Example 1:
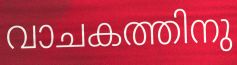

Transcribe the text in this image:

വാചകത്തിനു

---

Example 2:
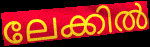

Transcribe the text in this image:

ലേക്കിൽ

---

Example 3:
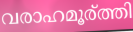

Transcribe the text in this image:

വരാഹമൂര്ത്തി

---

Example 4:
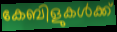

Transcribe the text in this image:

കേബിളുകൾക്ക്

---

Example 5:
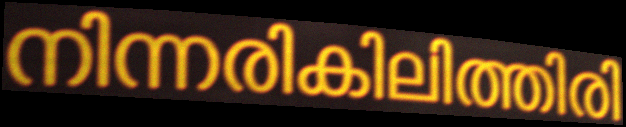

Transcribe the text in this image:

നിന്നരികിലിത്തിരി